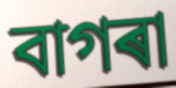
বাগৰা